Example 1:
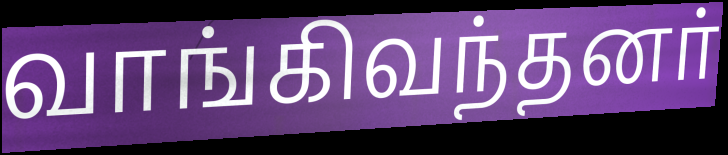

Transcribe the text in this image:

வாங்கிவந்தனர்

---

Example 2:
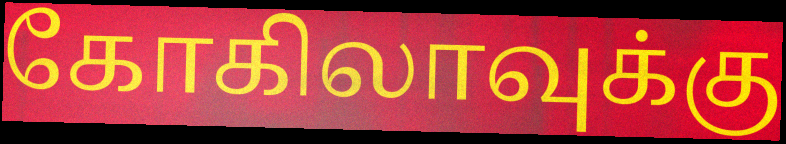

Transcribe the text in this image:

கோகிலாவுக்கு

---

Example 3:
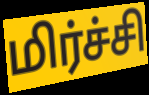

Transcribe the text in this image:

மிர்ச்சி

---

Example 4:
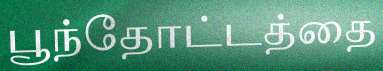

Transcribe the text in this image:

பூந்தோட்டத்தை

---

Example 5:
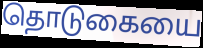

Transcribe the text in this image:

தொடுகையை